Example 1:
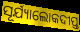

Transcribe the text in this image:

ସୂର୍ଯ୍ୟାଲୋକଦୀପ୍ତ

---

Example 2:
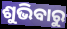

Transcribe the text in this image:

ଶୁଭିବାରୁ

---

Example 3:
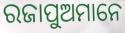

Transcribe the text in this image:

ରଜାପୁଅମାନେ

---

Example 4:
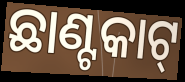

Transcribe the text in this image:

ଛାଣ୍ଟକାଟ୍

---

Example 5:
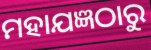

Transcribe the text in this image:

ମହାଯଜ୍ଞଠାରୁ